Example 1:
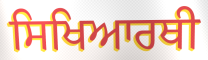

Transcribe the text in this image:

ਸਿਖਿਆਰਥੀ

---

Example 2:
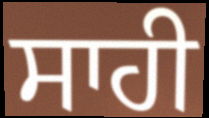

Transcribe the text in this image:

ਸਾਹੀ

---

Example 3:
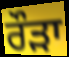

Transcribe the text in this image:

ਰੌੜਾ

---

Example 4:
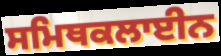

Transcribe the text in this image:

ਸਮਿਥਕਲਾਈਨ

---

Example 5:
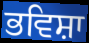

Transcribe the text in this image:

ਭਵਿਸ਼ਾ